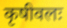
कृषीवलः